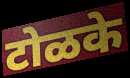
टोळके